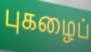
புகழைப்